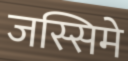
जस्सिमे